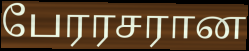
பேரரசரான